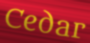
Cedar